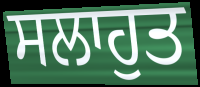
ਸਲਾਹੁਤ